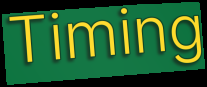
Timing